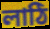
লাঠি